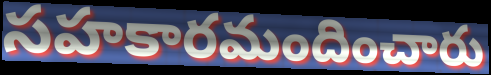
సహకారమందించారు